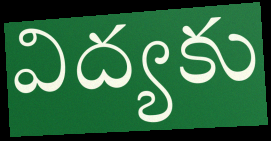
విద్యకు